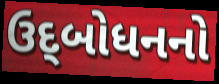
ઉદ્‌બોધનનો